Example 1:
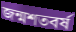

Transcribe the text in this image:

জন্মশতবর্ষ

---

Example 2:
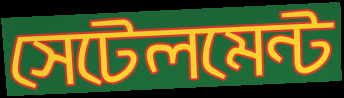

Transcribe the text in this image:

সেটেলমেন্ট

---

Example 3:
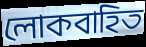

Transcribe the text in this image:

লোকবাহিত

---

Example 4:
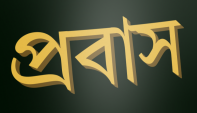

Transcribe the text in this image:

প্রবাস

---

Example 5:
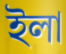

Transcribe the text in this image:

ইলা